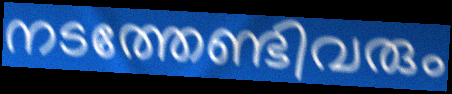
നടത്തേണ്ടിവരും